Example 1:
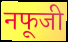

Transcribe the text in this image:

नफूजी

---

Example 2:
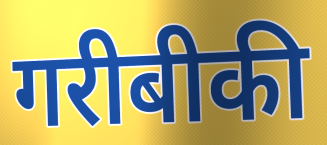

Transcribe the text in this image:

गरीबीकी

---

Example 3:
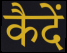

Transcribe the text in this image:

कैदें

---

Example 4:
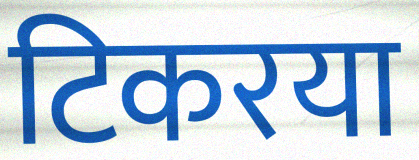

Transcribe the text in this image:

टिकरया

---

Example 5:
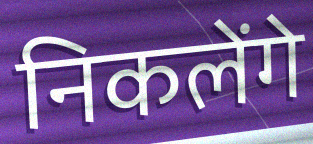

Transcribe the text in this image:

निकलेंगे